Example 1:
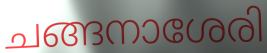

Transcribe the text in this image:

ചങ്ങനാശേരി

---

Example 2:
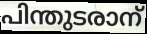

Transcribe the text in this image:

പിന്തുടരാന്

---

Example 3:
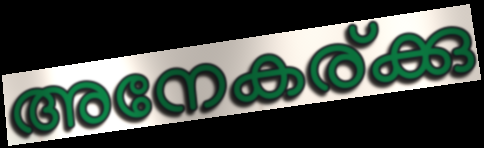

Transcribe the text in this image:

അനേകര്ക്കു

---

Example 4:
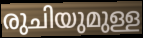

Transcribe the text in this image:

രുചിയുമുള്ള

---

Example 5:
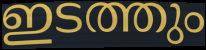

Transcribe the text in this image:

ഇടത്തും